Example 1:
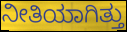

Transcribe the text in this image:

ನೀತಿಯಾಗಿತ್ತು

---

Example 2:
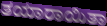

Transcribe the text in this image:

ತಯಾರಾಯಿತಾ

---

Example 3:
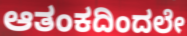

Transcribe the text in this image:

ಆತಂಕದಿಂದಲೇ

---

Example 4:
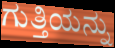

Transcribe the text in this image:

ಗುತ್ತಿಯನ್ನು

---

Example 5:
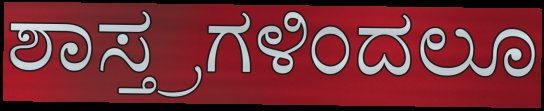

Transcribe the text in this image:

ಶಾಸ್ತ್ರಗಳಿಂದಲೂ